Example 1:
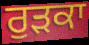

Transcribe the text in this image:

ਰੁੜਕਾ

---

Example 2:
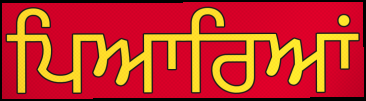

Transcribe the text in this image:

ਪਿਆਰਿਆਂ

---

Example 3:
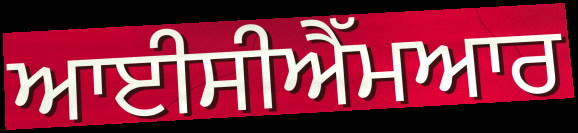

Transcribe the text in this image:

ਆਈਸੀਐੱਮਆਰ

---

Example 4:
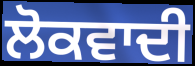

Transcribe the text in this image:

ਲੋਕਵਾਦੀ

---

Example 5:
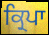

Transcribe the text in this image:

ਕ੍ਰਿਪਾ